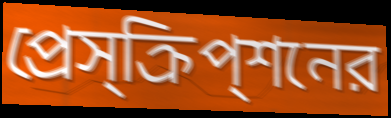
প্রেস্‌ক্রিপ্‌শনের